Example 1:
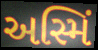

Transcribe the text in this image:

અસ્મિં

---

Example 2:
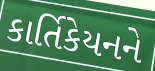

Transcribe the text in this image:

કાર્તિકેયનને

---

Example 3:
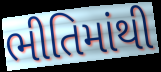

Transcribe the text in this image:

ભીતિમાંથી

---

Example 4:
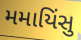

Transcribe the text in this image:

મમાયિંસુ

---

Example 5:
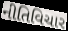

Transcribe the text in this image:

નીતિવિચાર